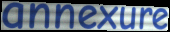
annexure